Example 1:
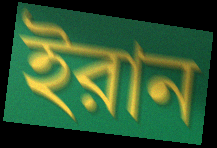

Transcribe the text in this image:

ইরান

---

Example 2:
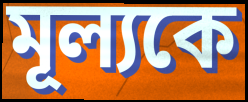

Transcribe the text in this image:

মূল্যকে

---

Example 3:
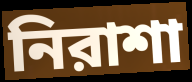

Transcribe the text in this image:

নিরাশা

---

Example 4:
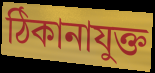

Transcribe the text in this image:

ঠিকানাযুক্ত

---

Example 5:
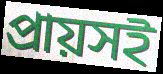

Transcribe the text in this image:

প্রায়সই